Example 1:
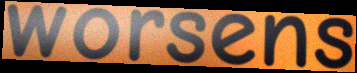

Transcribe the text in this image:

worsens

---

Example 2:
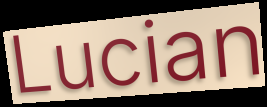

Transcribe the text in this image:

Lucian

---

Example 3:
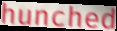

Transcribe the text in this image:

hunched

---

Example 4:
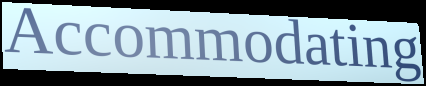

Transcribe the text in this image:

Accommodating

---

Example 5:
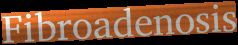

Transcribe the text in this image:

Fibroadenosis